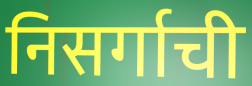
निसर्गाची